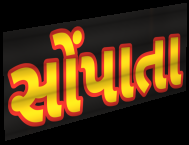
સોંપાતા